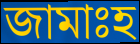
জামাঃহ